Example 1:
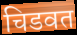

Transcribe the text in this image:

चिडवत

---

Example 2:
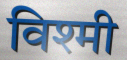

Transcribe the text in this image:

विश्मी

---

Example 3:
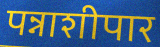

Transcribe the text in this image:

पन्नाशीपार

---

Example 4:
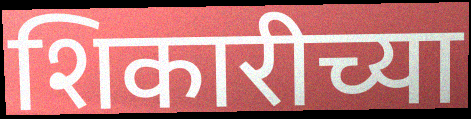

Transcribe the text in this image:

शिकारीच्या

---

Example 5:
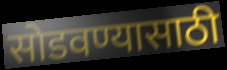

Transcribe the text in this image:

सोडवण्यासाठी